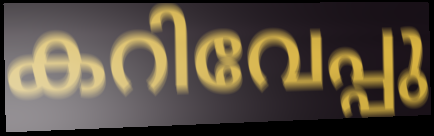
കറിവേപ്പു